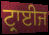
ਟ੍ਰਾਈਜ